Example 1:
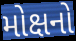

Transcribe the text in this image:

મોક્ષનો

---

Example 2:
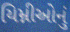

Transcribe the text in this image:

યિમ્નીઓનું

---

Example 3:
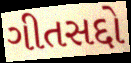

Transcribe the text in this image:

ગીતસદ્દો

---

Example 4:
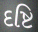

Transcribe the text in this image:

દષ્ટિ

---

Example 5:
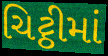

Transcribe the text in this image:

ચિટ્ઠીમાં